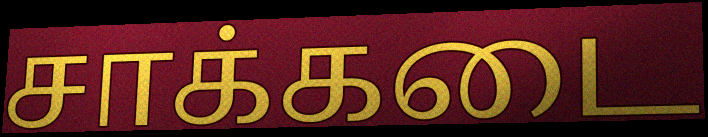
சாக்கடை